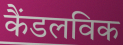
कैंडलविक